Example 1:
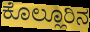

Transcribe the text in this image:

ಕೊಲ್ಲೂರಿನ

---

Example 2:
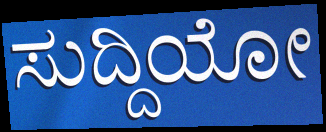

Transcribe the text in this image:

ಸುದ್ದಿಯೋ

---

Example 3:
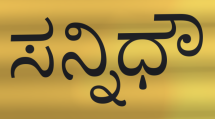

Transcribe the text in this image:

ಸನ್ನಿಧೌ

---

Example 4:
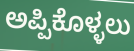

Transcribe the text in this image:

ಅಪ್ಪಿಕೊಳ್ಳಲು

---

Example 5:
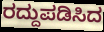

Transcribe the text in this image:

ರದ್ದುಪಡಿಸಿದ